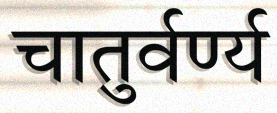
चातुर्वर्ण्य